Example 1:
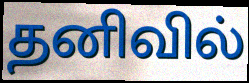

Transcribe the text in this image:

தனிவில்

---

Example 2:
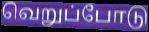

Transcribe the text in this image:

வெறுப்போடு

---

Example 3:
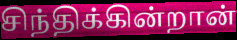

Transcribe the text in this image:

சிந்திக்கின்றான்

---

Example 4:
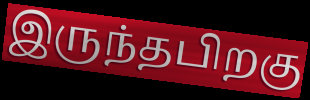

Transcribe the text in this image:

இருந்தபிறகு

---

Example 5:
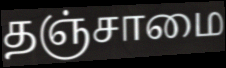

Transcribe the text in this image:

தஞ்சாமை